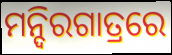
ମନ୍ଦିରଗାତ୍ରରେ